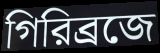
গিরিব্রজে